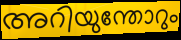
അറിയുന്തോറും